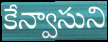
కేన్వాసుని